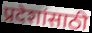
प्रदेशांसाठी